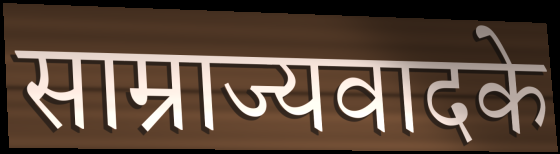
साम्राज्यवादके